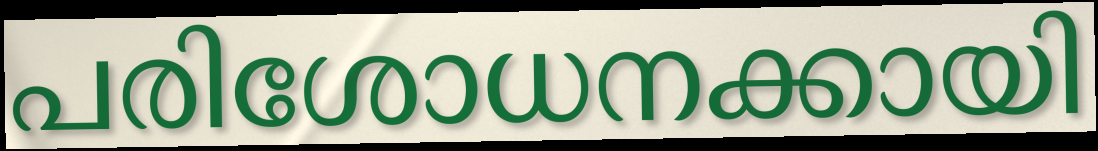
പരിശോധനക്കായി